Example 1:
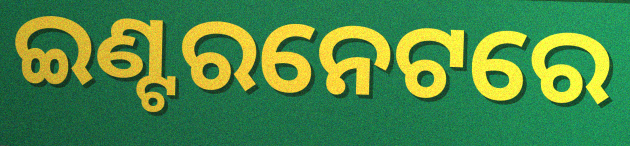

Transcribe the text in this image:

ଇଣ୍ଟରନେଟରେ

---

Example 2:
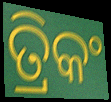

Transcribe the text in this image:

ତ୍ରିକଂ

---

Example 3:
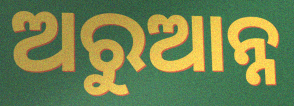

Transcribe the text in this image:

ଅରୁଆନ୍ନ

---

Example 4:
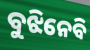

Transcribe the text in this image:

ବୁଝିନେବି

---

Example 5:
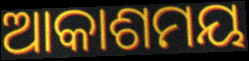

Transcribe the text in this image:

ଆକାଶମୟ